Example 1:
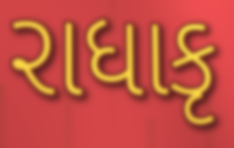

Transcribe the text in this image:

રાધાકૃ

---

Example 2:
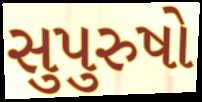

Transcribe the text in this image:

સુપુરુષો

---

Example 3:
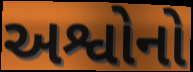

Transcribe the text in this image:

અશ્વોનો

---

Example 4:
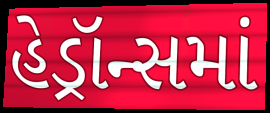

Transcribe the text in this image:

હેડ્રૉન્સમાં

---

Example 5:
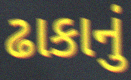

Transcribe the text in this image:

ઢાકાનું